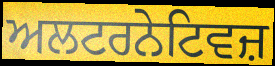
ਅਲਟਰਨੇਟਿਵਜ਼